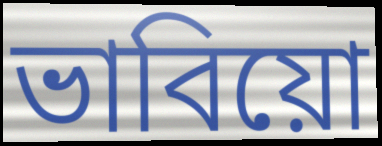
ভাবিয়ো